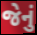
જેનું